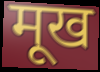
मूख